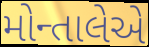
મોન્તાલેએ